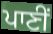
ਪਾਣੀਂ